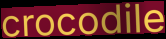
crocodile